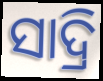
ସାଦ୍ରି